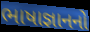
ભાષાજ્ઞાનનો